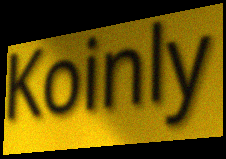
Koinly